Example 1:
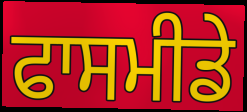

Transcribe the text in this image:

ਫਾਸਮੀਡੇ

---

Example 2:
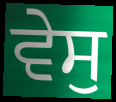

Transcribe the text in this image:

ਵੇਸੁ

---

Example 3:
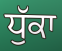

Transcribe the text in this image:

ਧੁੱਕਾ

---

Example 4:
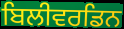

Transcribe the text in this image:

ਬਿਲੀਵਰਡਿਨ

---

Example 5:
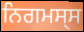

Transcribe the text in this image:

ਨਿਗਮਸ੍ਸ